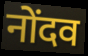
नोंदव